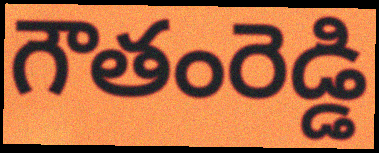
గౌతంరెడ్డి